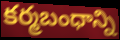
కర్మబంధాన్ని